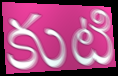
కుటి